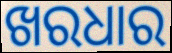
ଖରଧାର